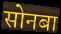
सोनबा